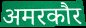
अमरकौर